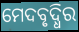
ମେଦବୃଦ୍ଧିର